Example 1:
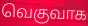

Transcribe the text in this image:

வெகுவாக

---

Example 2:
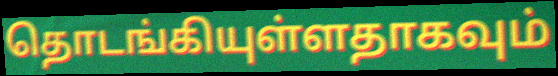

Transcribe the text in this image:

தொடங்கியுள்ளதாகவும்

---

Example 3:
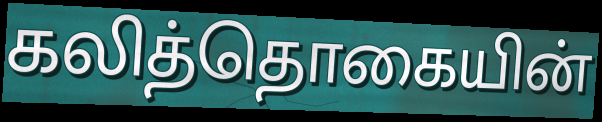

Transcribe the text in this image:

கலித்தொகையின்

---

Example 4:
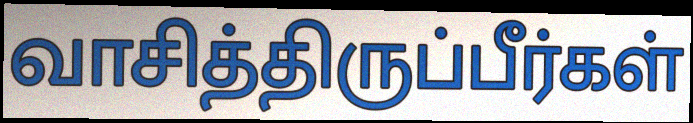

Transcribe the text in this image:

வாசித்திருப்பீர்கள்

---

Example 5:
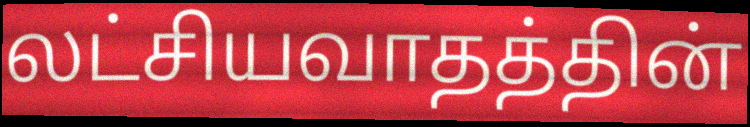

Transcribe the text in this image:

லட்சியவாதத்தின்